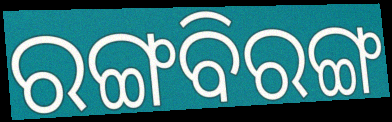
ରଙ୍ଗବିରଙ୍ଗ